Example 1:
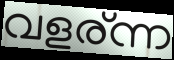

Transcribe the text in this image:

വളര്ന്ന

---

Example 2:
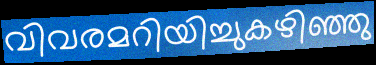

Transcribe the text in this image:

വിവരമറിയിച്ചുകഴിഞ്ഞു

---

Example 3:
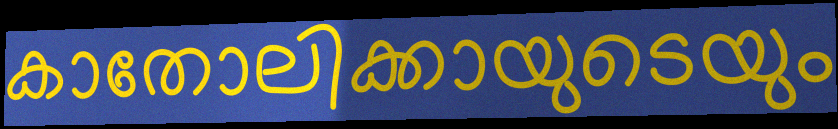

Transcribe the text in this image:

കാതോലിക്കായുടെയും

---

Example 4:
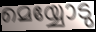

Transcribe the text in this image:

മെയ്യോടു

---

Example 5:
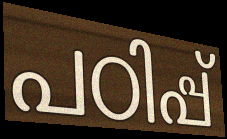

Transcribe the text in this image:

പഠിപ്പ്